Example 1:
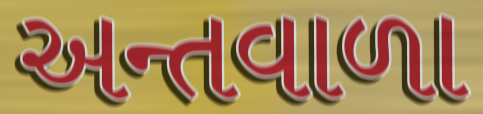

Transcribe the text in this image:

અન્તવાળા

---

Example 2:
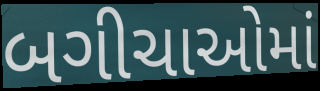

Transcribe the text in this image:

બગીચાઓમાં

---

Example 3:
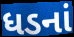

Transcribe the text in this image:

ધડનાં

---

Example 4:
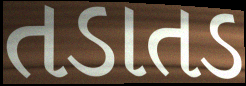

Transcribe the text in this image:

તડાતડ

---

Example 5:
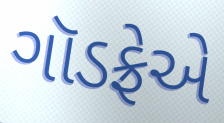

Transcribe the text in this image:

ગૉડફ્રેએ